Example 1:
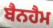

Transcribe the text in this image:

ਬੈਨਹੈਮ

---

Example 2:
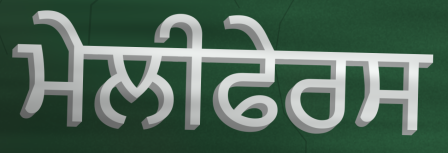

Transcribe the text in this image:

ਮੇਲੀਫੇਰਸ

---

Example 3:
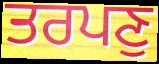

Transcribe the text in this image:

ਤਰਪਣੁ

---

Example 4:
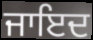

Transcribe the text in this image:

ਜਾਇਦ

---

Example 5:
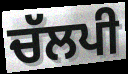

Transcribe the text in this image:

ਚੱਲਪੀ